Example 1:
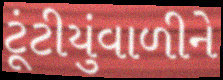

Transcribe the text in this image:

ટૂંટીયુંવાળીને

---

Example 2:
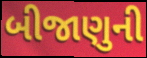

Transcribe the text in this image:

બીજાણુની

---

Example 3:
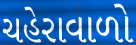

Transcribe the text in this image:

ચહેરાવાળો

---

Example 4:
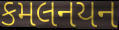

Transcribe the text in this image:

કમલનયન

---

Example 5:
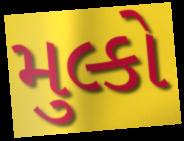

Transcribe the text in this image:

મુલ્કો